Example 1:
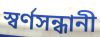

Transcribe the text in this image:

স্বর্ণসন্ধানী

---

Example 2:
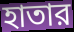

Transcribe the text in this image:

হাতার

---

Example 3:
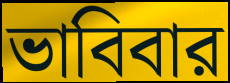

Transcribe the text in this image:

ভাবিবার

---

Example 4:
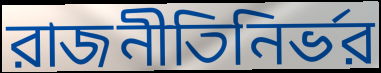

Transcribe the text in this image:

রাজনীতিনির্ভর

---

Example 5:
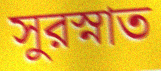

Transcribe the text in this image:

সুরস্নাত